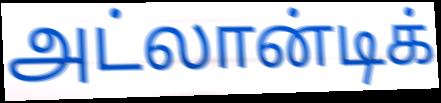
அட்லான்டிக்